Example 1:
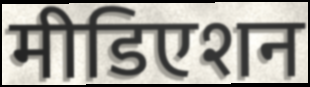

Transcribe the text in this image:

मीडिएशन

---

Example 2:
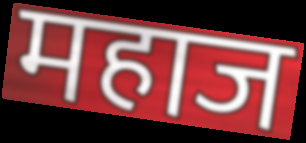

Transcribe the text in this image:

महाज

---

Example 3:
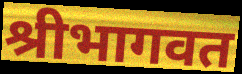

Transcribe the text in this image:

श्रीभागवत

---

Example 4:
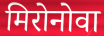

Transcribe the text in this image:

मिरोनोवा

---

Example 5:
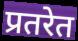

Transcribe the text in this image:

प्रतरेत